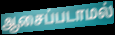
ஆசைப்படாமல்